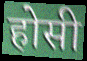
होसी